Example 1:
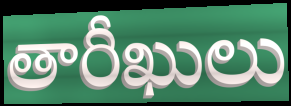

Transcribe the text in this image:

తారీఖులు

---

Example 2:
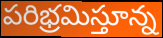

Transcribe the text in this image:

పరిభ్రమిస్తూన్న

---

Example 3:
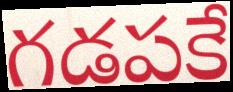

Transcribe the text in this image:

గడపకే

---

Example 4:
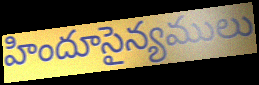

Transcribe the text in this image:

హిందూసైన్యములు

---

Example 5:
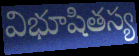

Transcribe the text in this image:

విభూషితస్య